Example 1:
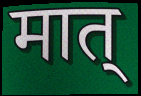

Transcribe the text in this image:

मात्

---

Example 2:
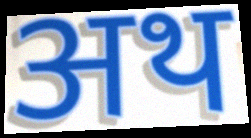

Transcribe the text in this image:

अथ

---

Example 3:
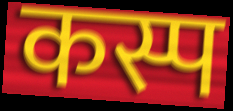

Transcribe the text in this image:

कस्प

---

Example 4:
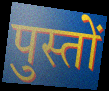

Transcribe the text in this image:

पुस्तों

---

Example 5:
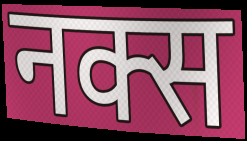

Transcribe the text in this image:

नक्स